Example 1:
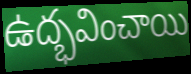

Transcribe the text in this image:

ఉద్భవించాయి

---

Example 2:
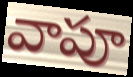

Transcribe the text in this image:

వాపూ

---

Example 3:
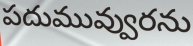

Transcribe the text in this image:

పదుమువ్వురను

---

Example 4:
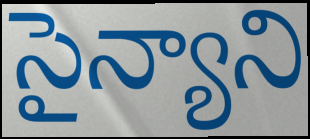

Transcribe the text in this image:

సైన్యాని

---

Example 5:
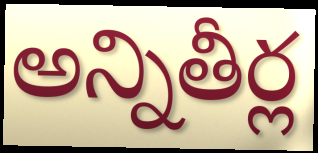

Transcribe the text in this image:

అన్నితీర్ల